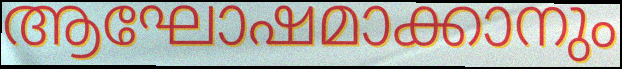
ആഘോഷമാക്കാനും